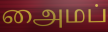
அைமப்